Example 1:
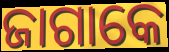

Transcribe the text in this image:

ଜାଗାକେ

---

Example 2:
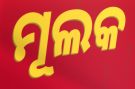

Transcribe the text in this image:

ମୂଲକ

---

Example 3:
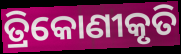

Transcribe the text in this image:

ତ୍ରିକୋଣୀକୃତି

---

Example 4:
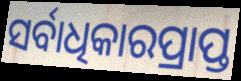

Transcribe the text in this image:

ସର୍ବାଧିକାରପ୍ରାପ୍ତ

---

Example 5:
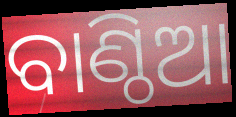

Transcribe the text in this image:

ବାଣ୍ଠିଆ